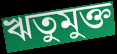
ঋতুমুক্ত